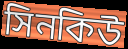
সিনকিউ